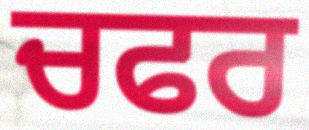
ਚਫਰ